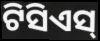
ଟିସିଏସ୍